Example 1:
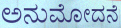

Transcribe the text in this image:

ಅನುಮೋದನೆ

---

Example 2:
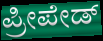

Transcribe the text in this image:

ಪ್ರೀಪೇಡ್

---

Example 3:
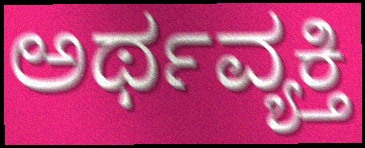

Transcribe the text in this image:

ಅರ್ಥವ್ಯಕ್ತಿ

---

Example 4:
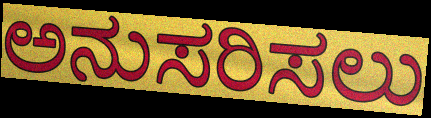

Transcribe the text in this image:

ಅನುಸರಿಸಲು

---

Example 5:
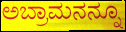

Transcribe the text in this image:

ಅಬ್ರಾಮನನ್ನೂ